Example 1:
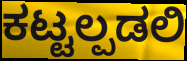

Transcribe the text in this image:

ಕಟ್ಟಲ್ಪಡಲಿ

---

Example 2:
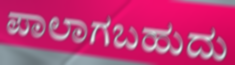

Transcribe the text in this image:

ಪಾಲಾಗಬಹುದು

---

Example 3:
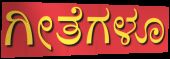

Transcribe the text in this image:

ಗೀತೆಗಳೂ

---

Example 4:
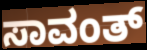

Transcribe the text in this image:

ಸಾವಂತ್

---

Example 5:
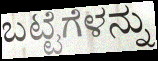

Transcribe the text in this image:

ಬಟ್ಟೆಗೆಳನ್ನು